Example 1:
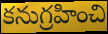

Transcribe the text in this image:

కనుగ్రహించి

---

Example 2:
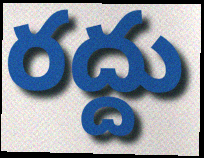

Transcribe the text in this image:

రద్దు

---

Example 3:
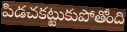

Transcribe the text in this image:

పిడచకట్టుకుపోతోంది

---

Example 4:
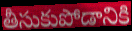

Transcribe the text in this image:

తీసుకుపోడానికి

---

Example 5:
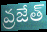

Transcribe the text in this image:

వ్రజేత్